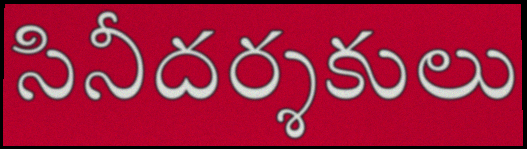
సినీదర్శకులు